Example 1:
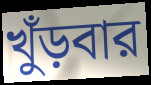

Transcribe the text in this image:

খুঁড়বার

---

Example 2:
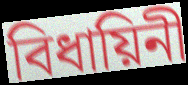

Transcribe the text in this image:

বিধায়িনী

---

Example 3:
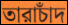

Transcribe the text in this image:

তারাচাঁদ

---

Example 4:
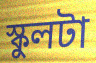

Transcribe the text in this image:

স্কুলটা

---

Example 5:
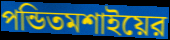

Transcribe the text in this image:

পন্ডিতমশাইয়ের